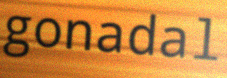
gonadal